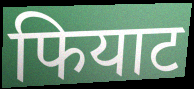
फियाट